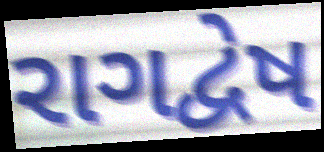
રાગદ્વેષ